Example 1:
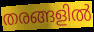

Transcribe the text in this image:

തരങ്ങളിൽ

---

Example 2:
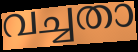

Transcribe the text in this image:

വച്ചതാ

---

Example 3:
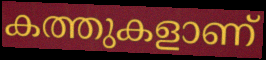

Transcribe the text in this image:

കത്തുകളാണ്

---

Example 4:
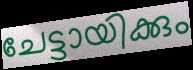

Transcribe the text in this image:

ചേട്ടായിക്കും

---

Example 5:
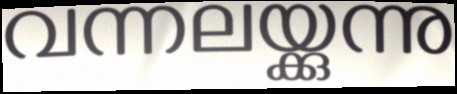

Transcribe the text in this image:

വന്നലയ്ക്കുന്നു